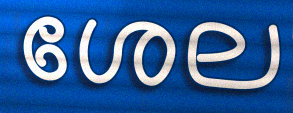
ശേല